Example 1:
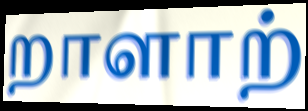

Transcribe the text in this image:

றாளாற்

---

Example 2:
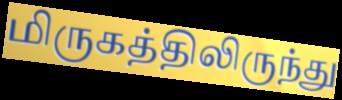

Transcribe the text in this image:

மிருகத்திலிருந்து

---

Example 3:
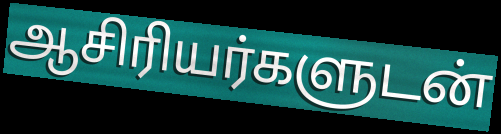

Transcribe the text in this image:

ஆசிரியர்களுடன்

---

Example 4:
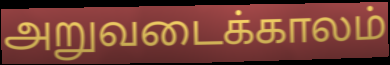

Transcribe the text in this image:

அறுவடைக்காலம்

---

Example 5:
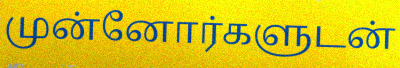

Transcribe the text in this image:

முன்னோர்களுடன்